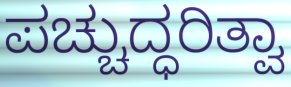
ಪಚ್ಚುದ್ಧರಿತ್ವಾ